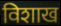
विशाख